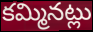
కమ్మినట్లు